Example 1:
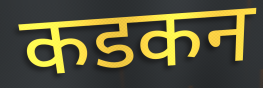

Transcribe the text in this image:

कडकन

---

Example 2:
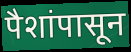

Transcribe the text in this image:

पैशांपासून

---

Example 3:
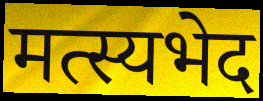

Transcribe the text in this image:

मत्स्यभेद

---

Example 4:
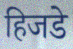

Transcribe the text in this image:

हिजडे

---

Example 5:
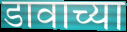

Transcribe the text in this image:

डावाच्या